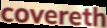
covereth